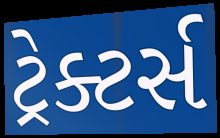
ટ્રેક્ટર્સ